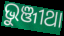
ଭୁଞ୍ଜୀଥା